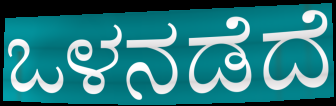
ಒಳನಡೆದೆ